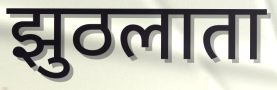
झुठलाता